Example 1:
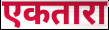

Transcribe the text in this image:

एकतारा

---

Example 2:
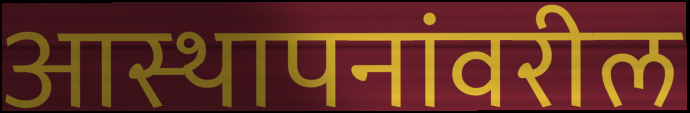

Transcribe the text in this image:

आस्थापनांवरील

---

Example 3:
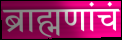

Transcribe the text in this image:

ब्राह्मणांचं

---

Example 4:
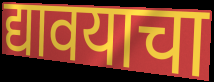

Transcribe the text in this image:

द्यावयाचा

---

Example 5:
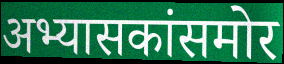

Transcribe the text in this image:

अभ्यासकांसमोर